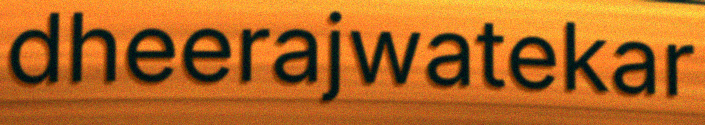
dheerajwatekar